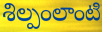
శిల్పంలాంటి